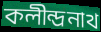
কলীন্দ্রনাথ